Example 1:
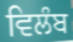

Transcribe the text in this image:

ਵਿਲੰਬ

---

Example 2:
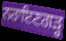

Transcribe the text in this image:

ਨਰਾਇਣਗੜ੍ਹ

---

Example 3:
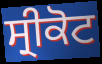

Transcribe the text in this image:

ਸ੍ਰੀਕੋਟ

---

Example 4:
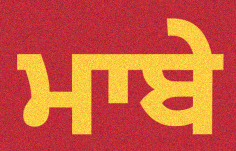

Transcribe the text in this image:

ਮਾਬੇ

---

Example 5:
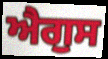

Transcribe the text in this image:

ਐਗੁਸ